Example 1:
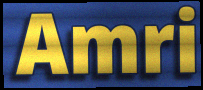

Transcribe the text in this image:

Amri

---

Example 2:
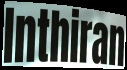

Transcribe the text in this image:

Inthiran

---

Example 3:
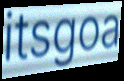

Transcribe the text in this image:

itsgoa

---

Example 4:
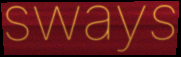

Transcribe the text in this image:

sways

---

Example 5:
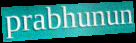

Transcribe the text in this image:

prabhunun